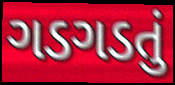
ગડગડતું